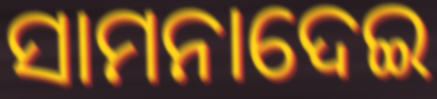
ସାମନାଦେଇ